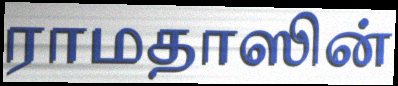
ராமதாஸின்